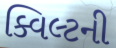
ક્વિલ્ટની